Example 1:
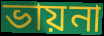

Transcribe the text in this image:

ভায়না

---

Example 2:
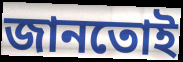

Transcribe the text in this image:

জানতোই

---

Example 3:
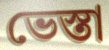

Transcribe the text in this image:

ভেস্তা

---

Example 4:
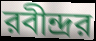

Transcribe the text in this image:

রবীন্দ্রর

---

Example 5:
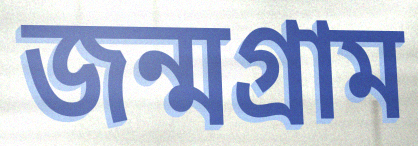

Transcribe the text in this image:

জন্মগ্রাম